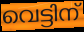
വെട്ടിന്